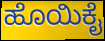
ಹೊಯಿಕೈ